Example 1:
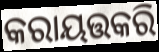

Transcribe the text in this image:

କରାୟତ୍ତକରି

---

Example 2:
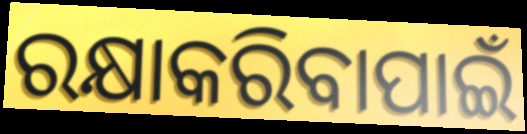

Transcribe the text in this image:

ରକ୍ଷାକରିବାପାଇଁ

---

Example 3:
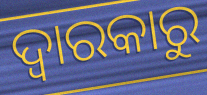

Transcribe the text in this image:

ଦ୍ଵାରକାରୁ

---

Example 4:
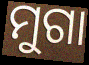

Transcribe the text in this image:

ମୁଗା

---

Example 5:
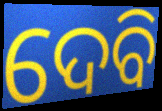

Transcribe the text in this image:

ଦେବି